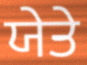
ਯੇਤੇ